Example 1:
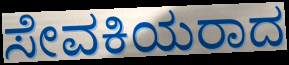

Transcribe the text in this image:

ಸೇವಕಿಯರಾದ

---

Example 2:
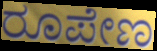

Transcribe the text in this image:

ರೂಪೇಣ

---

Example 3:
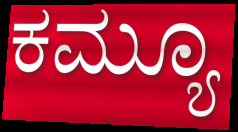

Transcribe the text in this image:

ಕಮ್ಯೂ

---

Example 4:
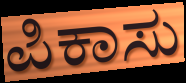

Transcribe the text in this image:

ಪಿಕಾಸು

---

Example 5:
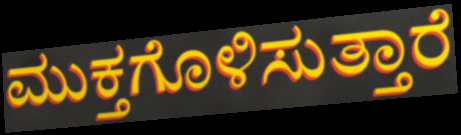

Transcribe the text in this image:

ಮುಕ್ತಗೊಳಿಸುತ್ತಾರೆ